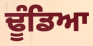
ਢੂੰਡਿਆ